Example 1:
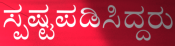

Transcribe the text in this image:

ಸ್ಪಷ್ಟಪಡಿಸಿದ್ದರು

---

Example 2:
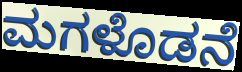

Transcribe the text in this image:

ಮಗಳೊಡನೆ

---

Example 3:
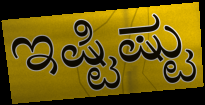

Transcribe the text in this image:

ಇಷ್ಟಿಷ್ಟು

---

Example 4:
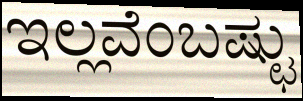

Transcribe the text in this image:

ಇಲ್ಲವೆಂಬಷ್ಟು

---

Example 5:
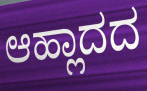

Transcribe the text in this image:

ಆಹ್ಲಾದದ